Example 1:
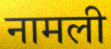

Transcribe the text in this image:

नामली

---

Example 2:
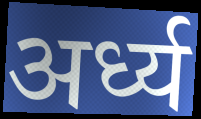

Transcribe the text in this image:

अर्ध्य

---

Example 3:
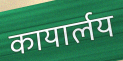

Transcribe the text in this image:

कायार्लय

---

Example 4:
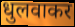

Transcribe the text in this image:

धुलवाकर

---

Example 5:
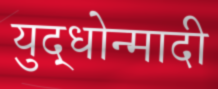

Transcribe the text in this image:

युद्धोन्मादी